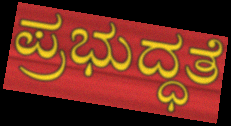
ಪ್ರಭುದ್ಧತೆ